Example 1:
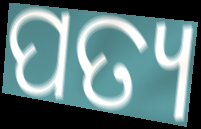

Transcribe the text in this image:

ପତ୍ୟ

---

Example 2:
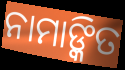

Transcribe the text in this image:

ନାମାଙ୍କିତ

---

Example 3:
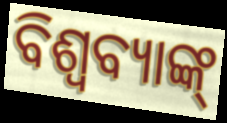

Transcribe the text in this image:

ବିଶ୍ବବ୍ୟାଙ୍କ୍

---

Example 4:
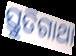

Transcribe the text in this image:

ସ୍ତୁତିଗାଥା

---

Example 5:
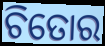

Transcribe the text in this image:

ଚିତୋର